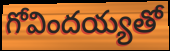
గోవిందయ్యతో